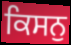
ਕਿਸਨੁ